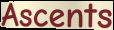
Ascents